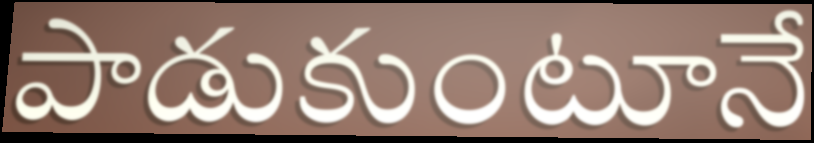
పాడుకుంటూనే